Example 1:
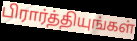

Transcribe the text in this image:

பிரார்த்தியுங்கள்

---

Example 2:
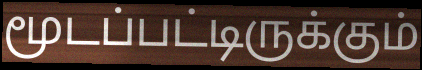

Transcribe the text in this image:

மூடப்பட்டிருக்கும்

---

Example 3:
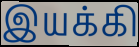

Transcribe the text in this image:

இயக்கி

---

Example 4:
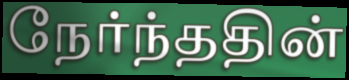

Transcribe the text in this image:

நேர்ந்ததின்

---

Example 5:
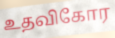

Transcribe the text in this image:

உதவிகோர